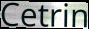
Cetrin